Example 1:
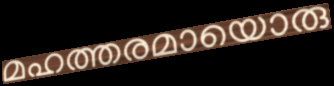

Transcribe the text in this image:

മഹത്തരമായൊരു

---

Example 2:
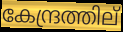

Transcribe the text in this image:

കേന്ദ്രത്തില്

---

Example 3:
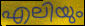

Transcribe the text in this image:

എലിയും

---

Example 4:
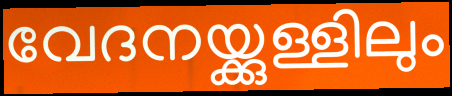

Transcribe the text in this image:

വേദനയ്ക്കുള്ളിലും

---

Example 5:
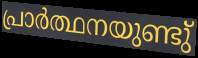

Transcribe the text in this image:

പ്രാർത്ഥനയുണ്ടു്